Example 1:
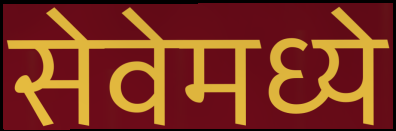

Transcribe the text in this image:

सेवेमध्ये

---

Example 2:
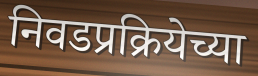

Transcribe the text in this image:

निवडप्रक्रियेच्या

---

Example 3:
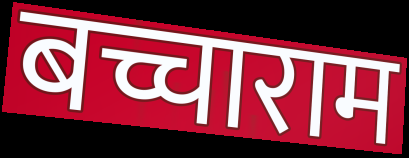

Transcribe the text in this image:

बच्चाराम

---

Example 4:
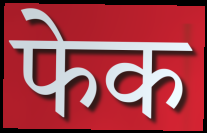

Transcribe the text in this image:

फेक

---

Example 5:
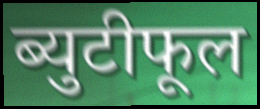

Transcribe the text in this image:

ब्युटीफूल